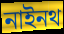
নাইনথ